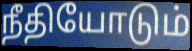
நீதியோடும்